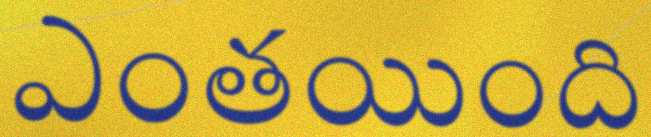
ఎంతయింది